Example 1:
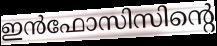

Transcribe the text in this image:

ഇൻഫോസിസിന്റെ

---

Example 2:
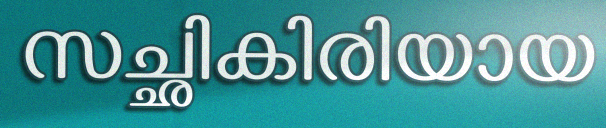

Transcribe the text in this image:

സച്ഛികിരിയായ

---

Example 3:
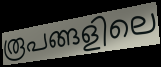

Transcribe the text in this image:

രൂപങ്ങളിലെ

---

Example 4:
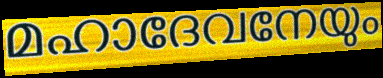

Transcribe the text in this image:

മഹാദേവനേയും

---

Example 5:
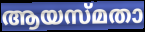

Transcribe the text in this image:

ആയസ്മതാ